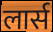
लार्स